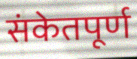
संकेतपूर्ण